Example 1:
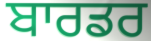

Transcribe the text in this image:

ਬਾਰਡਰ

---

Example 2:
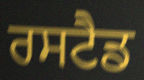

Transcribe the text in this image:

ਰਸਟੈਡ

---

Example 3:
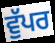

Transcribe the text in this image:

ਵੁੱਪਰ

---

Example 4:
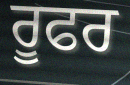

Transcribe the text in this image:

ਰੂਫਰ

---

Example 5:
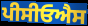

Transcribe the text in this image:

ਪੀਸੀਓਐਸ